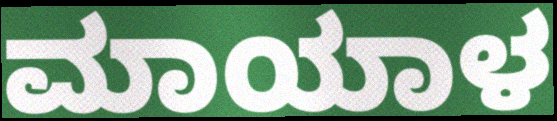
ಮಾಯಾಳ